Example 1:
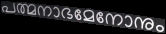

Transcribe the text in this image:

പത്മനാഭമേനോനും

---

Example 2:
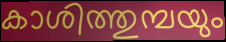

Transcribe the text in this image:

കാശിത്തുമ്പയും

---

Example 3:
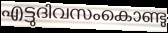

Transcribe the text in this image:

എട്ടുദിവസംകൊണ്ടു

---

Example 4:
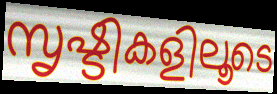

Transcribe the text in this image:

സൃഷ്ടികളിലൂടെ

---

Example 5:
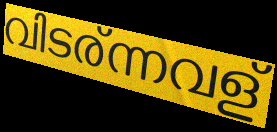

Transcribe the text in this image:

വിടര്ന്നവള്